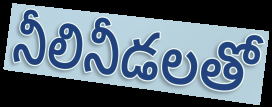
నీలినీడలతో